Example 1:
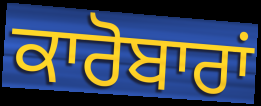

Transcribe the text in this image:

ਕਾਰੋਬਾਰਾਂ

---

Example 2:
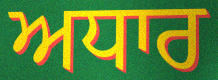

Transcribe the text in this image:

ਅਧਾਰ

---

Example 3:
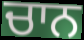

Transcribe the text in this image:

ਚਾਨ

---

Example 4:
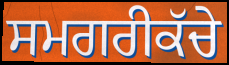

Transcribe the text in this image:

ਸਮਗਰੀਕੱਚੇ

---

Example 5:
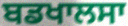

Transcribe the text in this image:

ਬਡਖਾਲਸਾ